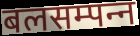
बलसम्पन्न